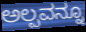
ಅಲ್ಪವನ್ನೂ